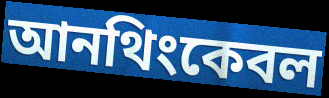
আনথিংকেবল